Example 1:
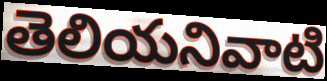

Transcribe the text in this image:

తెలియనివాటి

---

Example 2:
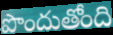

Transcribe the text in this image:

పొందుతోంది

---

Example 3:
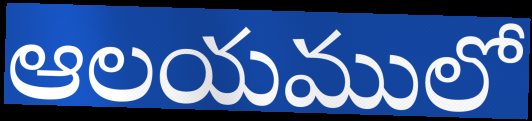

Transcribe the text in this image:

ఆలయములో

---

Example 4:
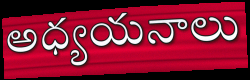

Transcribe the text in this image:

అధ్యయనాలు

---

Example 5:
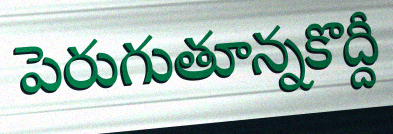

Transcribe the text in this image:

పెరుగుతూన్నకొద్దీ